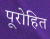
पूरोहित